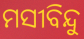
ମସୀବିନ୍ଦୁ